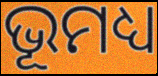
ଭୂମଧ୍ୟ